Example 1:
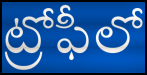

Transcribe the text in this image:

ట్రోఫీలో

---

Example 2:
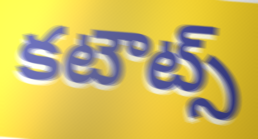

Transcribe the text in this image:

కటౌట్స్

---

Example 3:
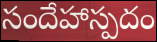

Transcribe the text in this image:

సందేహాస్పదం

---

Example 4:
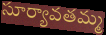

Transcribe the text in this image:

సూర్యావతమ్మ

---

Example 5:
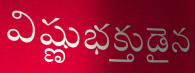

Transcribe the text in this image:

విష్ణుభక్తుడైన